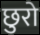
छुरो